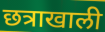
छत्राखाली